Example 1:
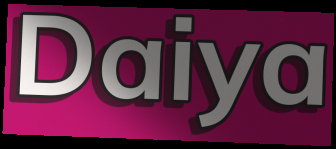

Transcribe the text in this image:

Daiya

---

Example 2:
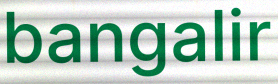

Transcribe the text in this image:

bangalir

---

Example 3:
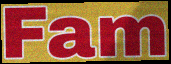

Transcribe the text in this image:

Fam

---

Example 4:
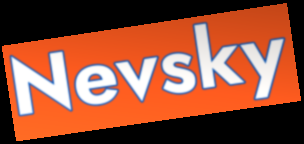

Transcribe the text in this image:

Nevsky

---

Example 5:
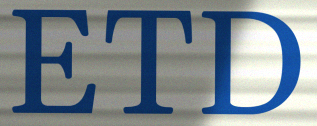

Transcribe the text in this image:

ETD